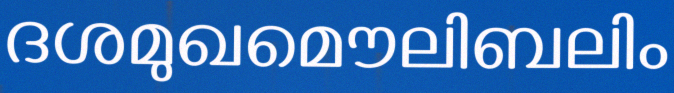
ദശമുഖമൌലിബലിം